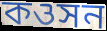
কওসন